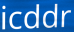
icddr